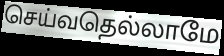
செய்வதெல்லாமே